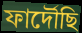
ফাৰ্দৌছি